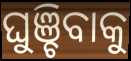
ଘୁଞ୍ଚିବାକୁ